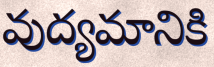
వుద్యమానికి